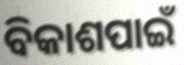
ବିକାଶପାଇଁ